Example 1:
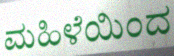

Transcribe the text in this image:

ಮಹಿಳೆಯಿಂದ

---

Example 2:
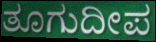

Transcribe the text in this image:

ತೂಗುದೀಪ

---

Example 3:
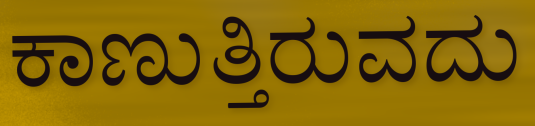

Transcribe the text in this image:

ಕಾಣುತ್ತಿರುವದು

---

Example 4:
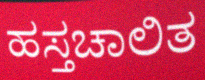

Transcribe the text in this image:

ಹಸ್ತಚಾಲಿತ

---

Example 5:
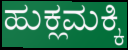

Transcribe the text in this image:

ಹುಕ್ಲಮಕ್ಕಿ